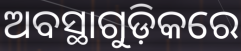
ଅବସ୍ଥାଗୁଡ଼ିକରେ